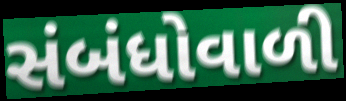
સંબંધોવાળી